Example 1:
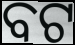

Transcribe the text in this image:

ବଟ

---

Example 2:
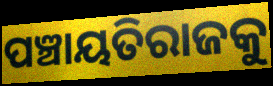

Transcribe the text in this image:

ପଞ୍ଚାୟତିରାଜକୁ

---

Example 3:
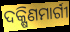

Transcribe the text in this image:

ଦକ୍ଷିଣମାର୍ଗୀ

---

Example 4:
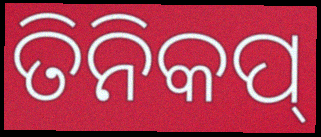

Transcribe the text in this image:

ତିନିକପ୍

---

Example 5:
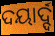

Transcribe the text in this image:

ଦୟାର୍ଦ୍ଦ